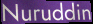
Nuruddin